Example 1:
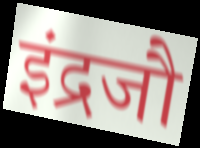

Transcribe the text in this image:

इंद्रजौ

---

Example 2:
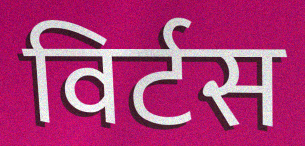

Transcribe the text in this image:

विर्टस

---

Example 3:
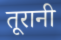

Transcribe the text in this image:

तूरानी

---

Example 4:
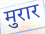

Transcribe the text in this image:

मुरार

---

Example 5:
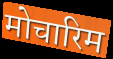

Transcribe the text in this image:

मोचारिम